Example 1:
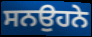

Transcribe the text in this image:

ਸਨਉਹਨੇ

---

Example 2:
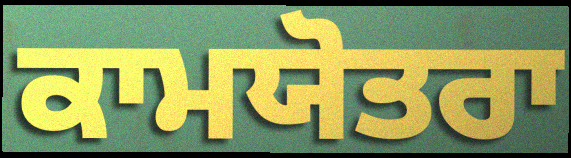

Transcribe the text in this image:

ਕਾਮਯੋਤਰਾ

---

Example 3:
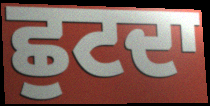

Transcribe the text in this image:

ਛੁਟਦਾ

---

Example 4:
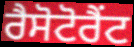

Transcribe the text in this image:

ਰੈਸੋਟੋਰੈਂਟ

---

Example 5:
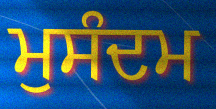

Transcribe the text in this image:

ਮੁਸੰਦਮ